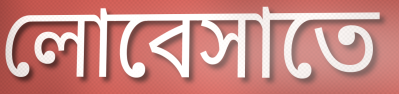
লোবেসাতে